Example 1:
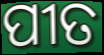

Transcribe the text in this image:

ପୀତ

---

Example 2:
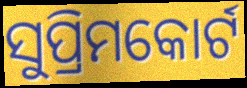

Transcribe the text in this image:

ସୁପ୍ରିମକୋର୍ଟ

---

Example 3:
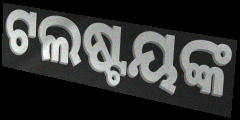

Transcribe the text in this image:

ଟଲଷ୍ଟୟଙ୍କ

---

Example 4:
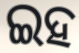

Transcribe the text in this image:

ଇହ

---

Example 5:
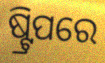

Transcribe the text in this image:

ଷ୍ଟ୍ରିପରେ